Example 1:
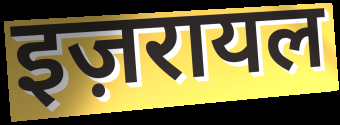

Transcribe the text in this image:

इज़रायल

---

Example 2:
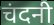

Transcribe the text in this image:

चंदनी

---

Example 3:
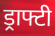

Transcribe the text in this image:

ड्राफ्टी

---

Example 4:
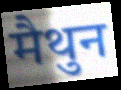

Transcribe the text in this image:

मैथुन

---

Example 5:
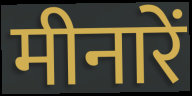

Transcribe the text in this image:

मीनारें